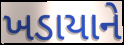
ખડાયાને